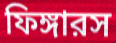
ফিঙ্গারস